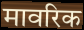
मावरिक